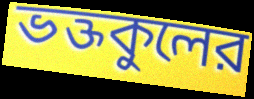
ভক্তকুলের